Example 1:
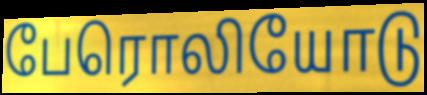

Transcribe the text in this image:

பேரொலியோடு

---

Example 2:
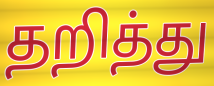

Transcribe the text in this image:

தறித்து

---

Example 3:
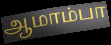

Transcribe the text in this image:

ஆமாம்பா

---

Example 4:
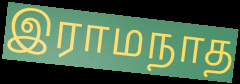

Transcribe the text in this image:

இராமநாத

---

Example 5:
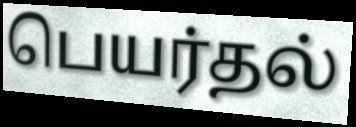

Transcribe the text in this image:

பெயர்தல்